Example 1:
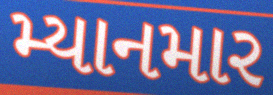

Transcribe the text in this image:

મ્યાનમાર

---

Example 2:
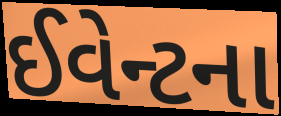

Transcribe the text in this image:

ઈવેન્ટના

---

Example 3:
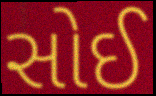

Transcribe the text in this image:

સોઈ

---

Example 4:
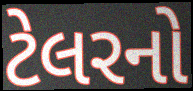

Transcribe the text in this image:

ટેલરનો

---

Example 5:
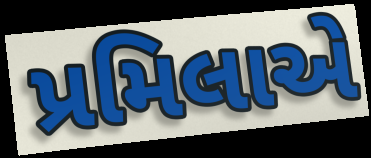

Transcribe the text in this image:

પ્રમિલાએ